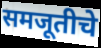
समजूतीचे